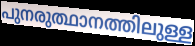
പുനരുത്ഥാനത്തിലുള്ള